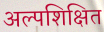
अल्पशिक्षित